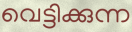
വെട്ടിക്കുന്ന